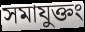
সমাযুক্তং